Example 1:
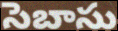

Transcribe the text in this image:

సెబాసు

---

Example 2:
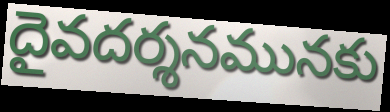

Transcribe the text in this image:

దైవదర్శనమునకు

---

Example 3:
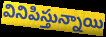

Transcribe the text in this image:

వినిపిస్తున్నాయి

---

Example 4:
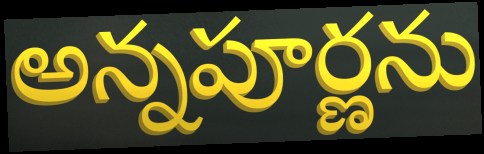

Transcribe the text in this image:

అన్నపూర్ణను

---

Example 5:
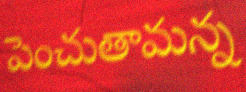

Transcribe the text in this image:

పెంచుతామన్న